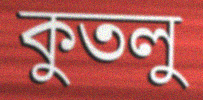
কুতলু